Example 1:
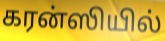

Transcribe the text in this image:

கரன்ஸியில்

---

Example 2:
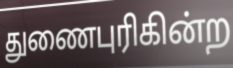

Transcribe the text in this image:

துணைபுரிகின்ற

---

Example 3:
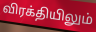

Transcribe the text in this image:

விரக்தியிலும்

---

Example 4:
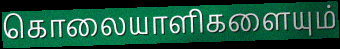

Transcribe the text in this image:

கொலையாளிகளையும்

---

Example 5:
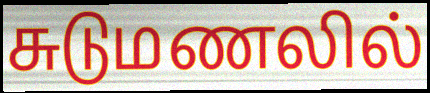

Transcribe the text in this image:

சுடுமணலில்